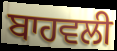
ਬਾਹਵਲੀ